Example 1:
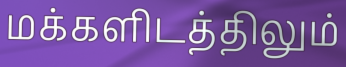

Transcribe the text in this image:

மக்களிடத்திலும்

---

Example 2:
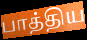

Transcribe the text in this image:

பாத்திய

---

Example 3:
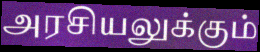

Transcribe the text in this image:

அரசியலுக்கும்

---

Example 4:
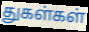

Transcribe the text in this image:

துகள்கள்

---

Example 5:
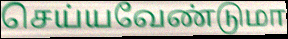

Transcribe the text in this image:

செய்யவேண்டுமா